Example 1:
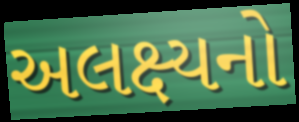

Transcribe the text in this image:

અલક્ષ્યનો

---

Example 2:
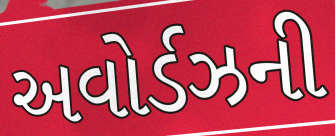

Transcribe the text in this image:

અવોર્ડઝની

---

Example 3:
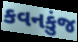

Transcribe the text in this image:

કવનકુંજ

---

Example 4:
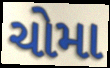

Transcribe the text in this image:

ચોમા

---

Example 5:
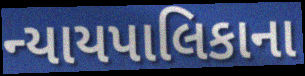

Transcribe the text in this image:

ન્યાયપાલિકાના